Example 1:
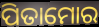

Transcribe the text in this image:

ପିତାମୋର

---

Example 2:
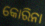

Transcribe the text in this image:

କୋରିନା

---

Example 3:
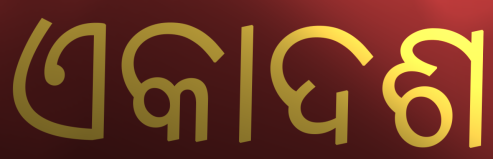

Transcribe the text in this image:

ଏକାଦଶ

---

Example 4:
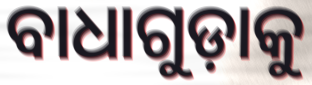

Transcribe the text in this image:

ବାଧାଗୁଡ଼ାକୁ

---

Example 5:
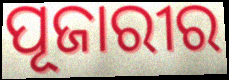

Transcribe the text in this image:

ପୂଜାରୀର